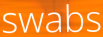
swabs